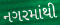
નગરમાંથી